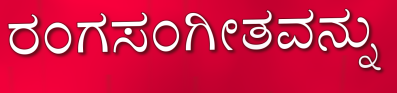
ರಂಗಸಂಗೀತವನ್ನು